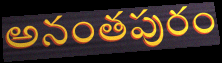
అనంతపురం